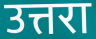
उत्तरा